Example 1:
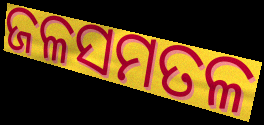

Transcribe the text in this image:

ଜଳସମତଳ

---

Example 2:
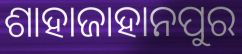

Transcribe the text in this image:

ଶାହାଜାହାନପୁର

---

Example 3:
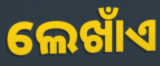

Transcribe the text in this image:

ଲେଖାଁଏ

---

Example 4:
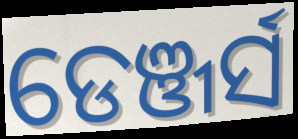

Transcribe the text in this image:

ଡେଞ୍ଜର୍ସ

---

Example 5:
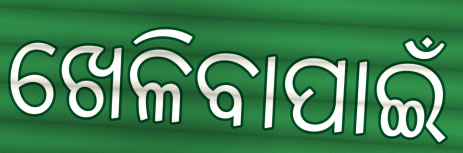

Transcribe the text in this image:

ଖେଳିବାପାଇଁ